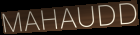
MAHAUDD